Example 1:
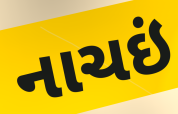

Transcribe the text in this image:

નાચઇં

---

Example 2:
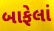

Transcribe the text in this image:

બાફેલાં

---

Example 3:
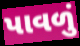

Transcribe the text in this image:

પાવળું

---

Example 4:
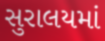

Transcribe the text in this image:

સુરાલયમાં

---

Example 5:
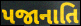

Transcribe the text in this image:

પજાનાતિ